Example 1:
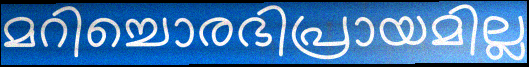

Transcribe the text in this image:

മറിച്ചൊരഭിപ്രായമില്ല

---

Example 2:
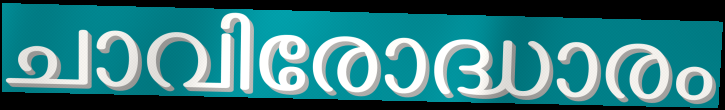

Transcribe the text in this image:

ചാവിരോദ്ധാരം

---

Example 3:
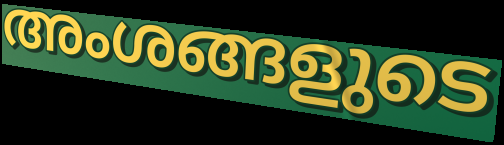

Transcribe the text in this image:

അംശങ്ങളുടെ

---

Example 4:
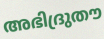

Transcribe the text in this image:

അഭിദ്രുതൗ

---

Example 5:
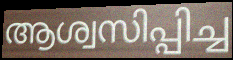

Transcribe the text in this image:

ആശ്വസിപ്പിച്ച